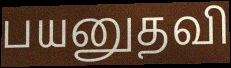
பயனுதவி